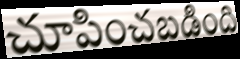
చూపించబడింది